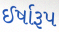
ઈર્ષારૂપ